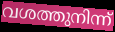
വശത്തുനിന്ന്